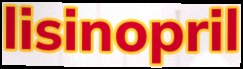
lisinopril